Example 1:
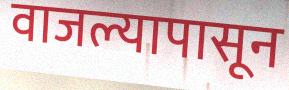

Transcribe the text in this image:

वाजल्यापासून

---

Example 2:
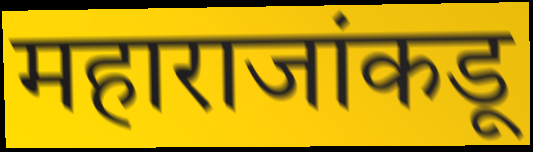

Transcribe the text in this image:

महाराजांकडू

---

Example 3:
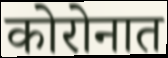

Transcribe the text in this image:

कोरोनात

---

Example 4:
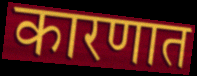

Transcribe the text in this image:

कारणात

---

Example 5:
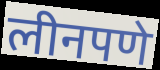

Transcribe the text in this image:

लीनपणे